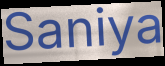
Saniya